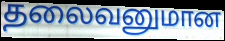
தலைவனுமான